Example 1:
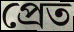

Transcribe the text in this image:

প্রেত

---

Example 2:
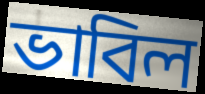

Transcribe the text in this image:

ভাবিল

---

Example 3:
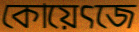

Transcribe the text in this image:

কোয়েৎজে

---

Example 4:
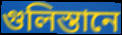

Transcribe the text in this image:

গুলিস্তানে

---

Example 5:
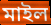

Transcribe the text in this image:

মাইল